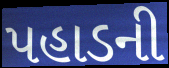
પહાડની